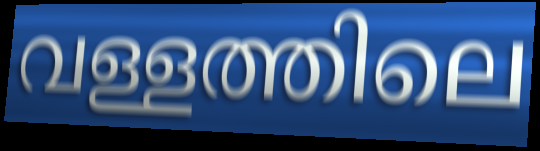
വള്ളത്തിലെ